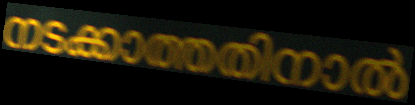
നടക്കാത്തതിനാൽ